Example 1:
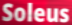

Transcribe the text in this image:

Soleus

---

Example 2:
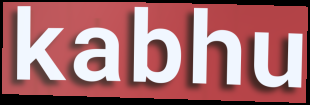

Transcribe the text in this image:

kabhu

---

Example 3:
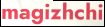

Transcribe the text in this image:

magizhchi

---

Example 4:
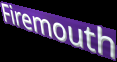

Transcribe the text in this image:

Firemouth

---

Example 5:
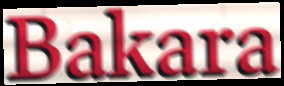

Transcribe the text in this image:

Bakara